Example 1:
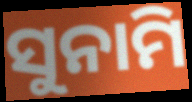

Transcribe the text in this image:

ସୁନାମି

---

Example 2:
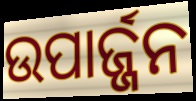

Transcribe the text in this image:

ଉପାର୍ଜ୍ଜନ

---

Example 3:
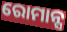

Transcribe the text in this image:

ରୋମାନ୍ସ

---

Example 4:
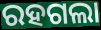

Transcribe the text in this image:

ରହଗଲା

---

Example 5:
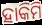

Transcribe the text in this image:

ହାକିମି